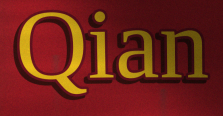
Qian